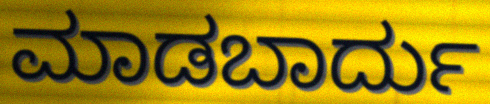
ಮಾಡಬಾರ್ದು